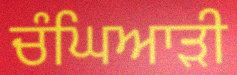
ਚੰਘਿਆੜੀ